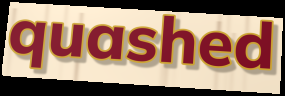
quashed